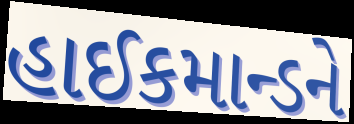
હાઈકમાન્ડને